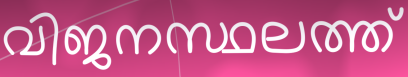
വിജനസ്ഥലത്ത്